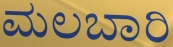
ಮಲಬಾರಿ